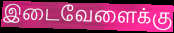
இடைவேளைக்கு